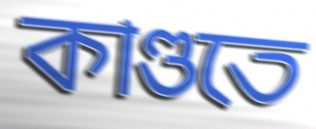
কাণ্ডতে